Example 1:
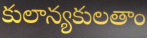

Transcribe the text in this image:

కులాన్యకులతాం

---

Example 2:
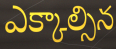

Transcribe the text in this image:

ఎక్కాల్సిన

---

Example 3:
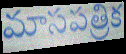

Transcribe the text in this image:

మాసపత్రిక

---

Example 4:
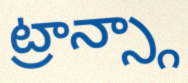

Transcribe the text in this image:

ట్రాన్స్గా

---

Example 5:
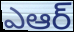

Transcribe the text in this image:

ఎఆర్